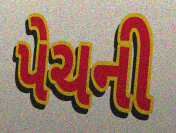
પેચની